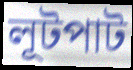
লূটপাট